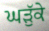
ਘੜੁੱਕੇ